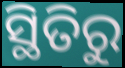
ସ୍ଥିତିରୁ